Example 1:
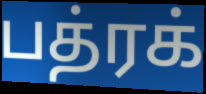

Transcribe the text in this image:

பத்ரக்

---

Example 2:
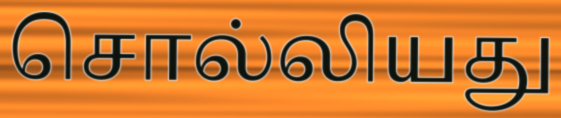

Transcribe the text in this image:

சொல்லியது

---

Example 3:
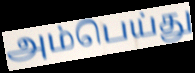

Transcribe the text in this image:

அம்பெய்து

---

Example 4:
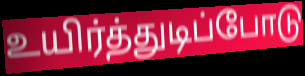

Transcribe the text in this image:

உயிர்த்துடிப்போடு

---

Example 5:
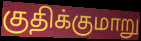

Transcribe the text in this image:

குதிக்குமாறு